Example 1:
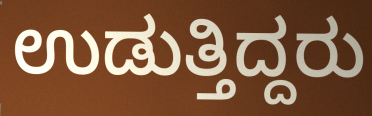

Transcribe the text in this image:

ಉಡುತ್ತಿದ್ದರು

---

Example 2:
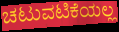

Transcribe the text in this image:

ಚಟುವಟಿಕೆಯಲ್ಲ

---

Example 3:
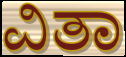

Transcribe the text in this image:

ವಿತಾ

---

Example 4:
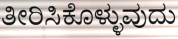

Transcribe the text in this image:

ತೀರಿಸಿಕೊಳ್ಳುವುದು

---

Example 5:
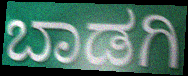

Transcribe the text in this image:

ಬಾಡಗಿ